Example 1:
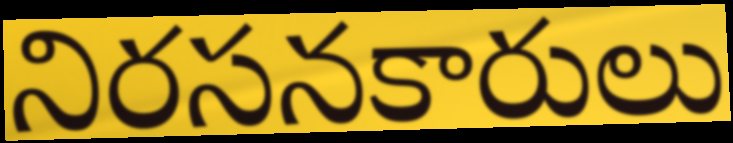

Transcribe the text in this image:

నిరసనకారులు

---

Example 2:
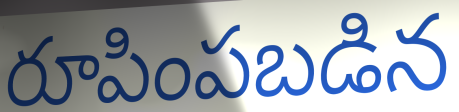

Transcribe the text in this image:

రూపింపబడిన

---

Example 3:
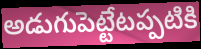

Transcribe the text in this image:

అడుగుపెట్టేటప్పటికి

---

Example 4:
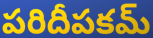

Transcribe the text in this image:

పరిదీపకమ్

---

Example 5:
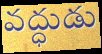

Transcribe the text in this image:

వద్ధుడు